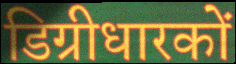
डिग्रीधारकों